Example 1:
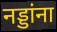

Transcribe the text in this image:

नड्डांना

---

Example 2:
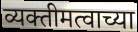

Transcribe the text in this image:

व्यक्तीमत्वाच्या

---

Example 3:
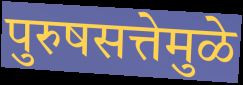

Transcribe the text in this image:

पुरुषसत्तेमुळे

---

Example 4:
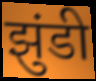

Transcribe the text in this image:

झुंडी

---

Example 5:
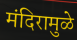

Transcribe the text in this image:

मंदिरामुळे